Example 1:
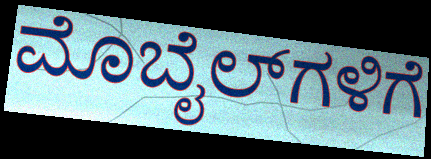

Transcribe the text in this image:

ಮೊಬೈಲ್‌ಗಳಿಗೆ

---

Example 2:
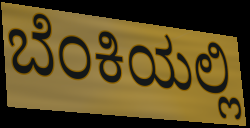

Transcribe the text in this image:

ಬೆಂಕಿಯಲ್ಲಿ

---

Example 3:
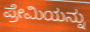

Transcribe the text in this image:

ಪ್ರೇಮಿಯನ್ನು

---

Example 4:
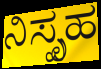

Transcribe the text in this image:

ನಿಸ್ಪೃಹ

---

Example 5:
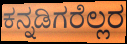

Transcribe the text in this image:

ಕನ್ನಡಿಗರೆಲ್ಲರ